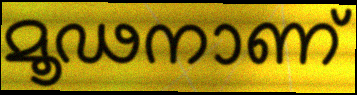
മൂഢനാണ്